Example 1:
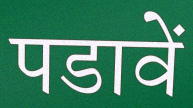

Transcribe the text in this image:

पडावें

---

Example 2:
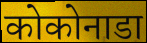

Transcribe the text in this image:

कोकोनाडा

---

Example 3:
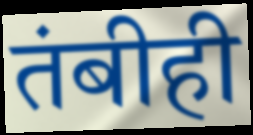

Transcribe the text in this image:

तंबीही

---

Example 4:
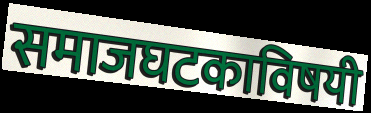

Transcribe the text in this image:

समाजघटकाविषयी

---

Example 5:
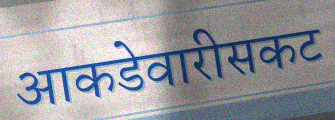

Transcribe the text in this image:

आकडेवारीसकट